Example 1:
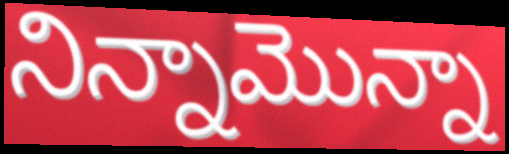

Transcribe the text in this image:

నిన్నామొన్నా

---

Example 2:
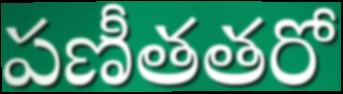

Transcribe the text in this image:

పణీతతరో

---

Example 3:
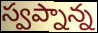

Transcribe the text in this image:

స్వప్నాన్న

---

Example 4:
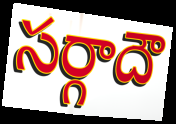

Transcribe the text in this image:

సర్గాదౌ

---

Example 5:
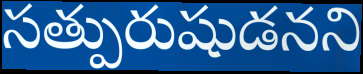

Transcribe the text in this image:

సత్పురుషుడనని